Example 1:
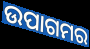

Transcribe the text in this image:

ଉପାଗମର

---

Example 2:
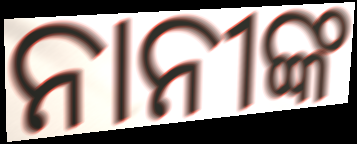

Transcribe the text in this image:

ନାନୀଙ୍କ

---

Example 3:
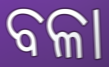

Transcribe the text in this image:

ବଳା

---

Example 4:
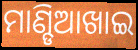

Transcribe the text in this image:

ମାଣ୍ଡିଆଖାଇ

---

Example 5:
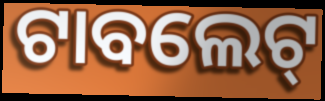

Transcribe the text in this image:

ଟାବଲେଟ୍